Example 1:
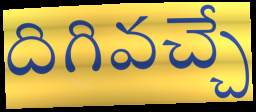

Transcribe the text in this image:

దిగివచ్చే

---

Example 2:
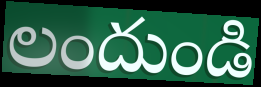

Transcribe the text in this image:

లందుండి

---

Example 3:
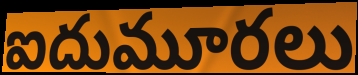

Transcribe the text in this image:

ఐదుమూరలు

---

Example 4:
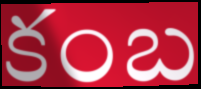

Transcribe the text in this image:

కంబ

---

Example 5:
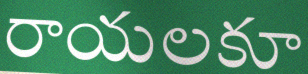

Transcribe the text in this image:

రాయలకూ